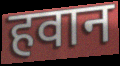
हवान